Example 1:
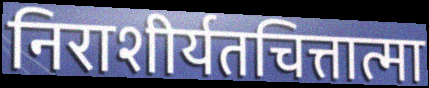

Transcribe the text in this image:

निराशीर्यतचित्तात्मा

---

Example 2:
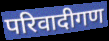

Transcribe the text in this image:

परिवादीगण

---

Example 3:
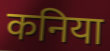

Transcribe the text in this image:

कनिया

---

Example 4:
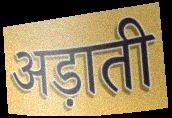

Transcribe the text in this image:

अड़ाती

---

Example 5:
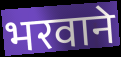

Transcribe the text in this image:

भरवाने